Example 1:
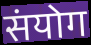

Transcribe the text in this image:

संयोग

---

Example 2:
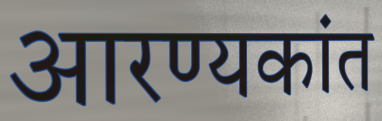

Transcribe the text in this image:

आरण्यकांत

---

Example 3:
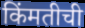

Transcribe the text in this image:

किंमतीची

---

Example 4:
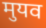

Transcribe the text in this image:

मुयव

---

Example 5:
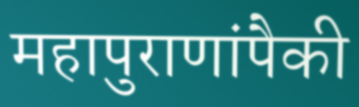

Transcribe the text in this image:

महापुराणांपैकी